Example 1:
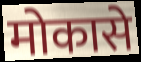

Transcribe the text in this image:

मोकासे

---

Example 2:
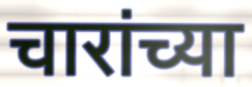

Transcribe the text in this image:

चारांच्या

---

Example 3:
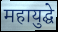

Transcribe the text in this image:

महायुद्घे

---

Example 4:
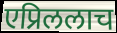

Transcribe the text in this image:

एप्रिललाच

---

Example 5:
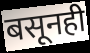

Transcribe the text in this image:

बसूनही